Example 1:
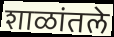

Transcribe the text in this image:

शाळांतले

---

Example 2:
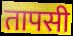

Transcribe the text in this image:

तापसी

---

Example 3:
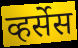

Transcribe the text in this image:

व्हर्सेस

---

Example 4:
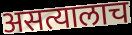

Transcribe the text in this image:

असत्यालाच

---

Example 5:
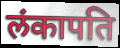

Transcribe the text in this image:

लंकापति